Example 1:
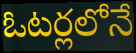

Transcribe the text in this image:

ఓటర్లలోనే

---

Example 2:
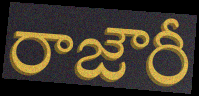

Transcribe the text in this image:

రాజౌరీ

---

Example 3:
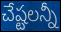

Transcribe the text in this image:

చేష్టలన్నీ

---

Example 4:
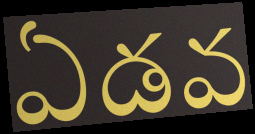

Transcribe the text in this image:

ఏడవ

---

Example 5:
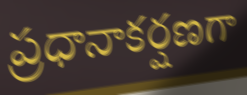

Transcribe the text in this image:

ప్రధానాకర్షణగా